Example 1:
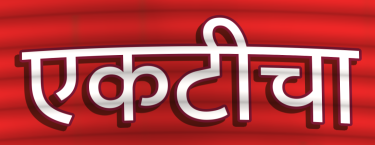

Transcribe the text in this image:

एकटीचा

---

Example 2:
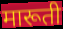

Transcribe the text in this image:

मारूती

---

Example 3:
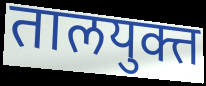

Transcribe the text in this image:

तालयुक्त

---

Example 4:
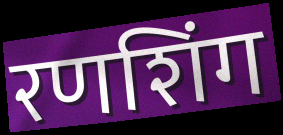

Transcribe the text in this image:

रणशिंग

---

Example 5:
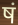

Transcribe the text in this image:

षं